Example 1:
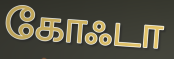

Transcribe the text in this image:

கோஃடா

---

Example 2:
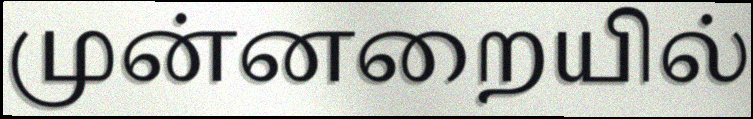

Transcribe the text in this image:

முன்னறையில்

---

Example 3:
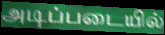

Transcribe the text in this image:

அடிப்படையில்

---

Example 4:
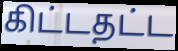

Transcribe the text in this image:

கிட்டதட்ட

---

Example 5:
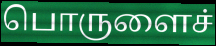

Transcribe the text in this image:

பொருளைச்